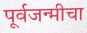
पूर्वजन्मीचा